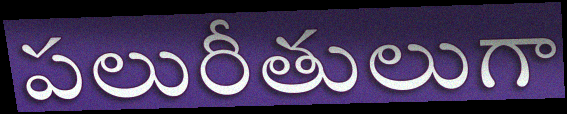
పలురీతులుగా